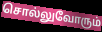
சொல்லுவோரும்